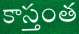
కాస్తంత